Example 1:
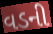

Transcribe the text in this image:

વડની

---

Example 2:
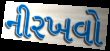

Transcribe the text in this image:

નીરખવો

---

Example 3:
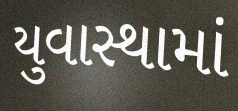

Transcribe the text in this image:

યુવાસ્થામાં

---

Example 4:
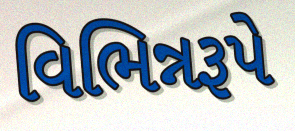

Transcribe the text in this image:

વિભિન્નરૂપે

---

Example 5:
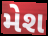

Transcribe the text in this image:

મેશ